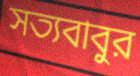
সত্যবাবুর